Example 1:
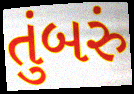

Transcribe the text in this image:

તુંબરું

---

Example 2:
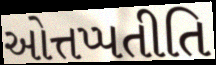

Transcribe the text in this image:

ઓત્તપ્પતીતિ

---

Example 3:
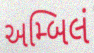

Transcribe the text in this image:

અમ્બિલં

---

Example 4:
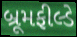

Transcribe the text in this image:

બ્રૂમફીલ્ડે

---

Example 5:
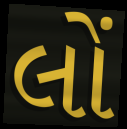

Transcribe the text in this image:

લોં